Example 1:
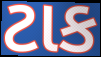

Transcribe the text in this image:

ટાક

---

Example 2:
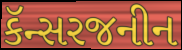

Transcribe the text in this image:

કૅન્સરજનીન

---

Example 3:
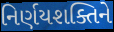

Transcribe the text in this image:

નિર્ણયશક્તિને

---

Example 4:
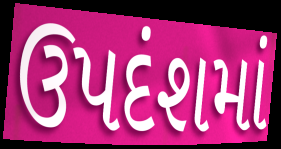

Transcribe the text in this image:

ઉપદંશમાં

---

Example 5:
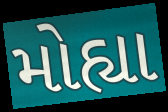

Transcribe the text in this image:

મોહ્યા